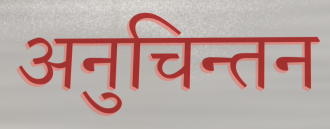
अनुचिन्तन